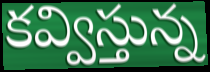
కవ్విస్తున్న